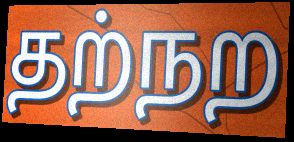
தற்நற